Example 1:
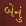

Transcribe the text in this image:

બેનું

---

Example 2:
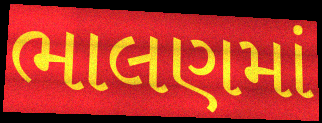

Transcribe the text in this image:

ભાલણમાં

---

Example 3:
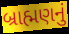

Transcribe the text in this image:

બ્રાહ્મણનું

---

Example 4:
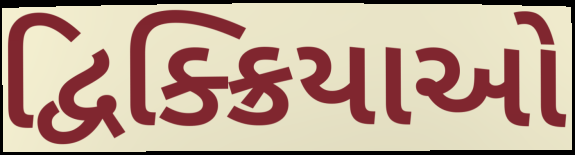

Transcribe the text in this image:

દ્વિક્ક્રિયાઓ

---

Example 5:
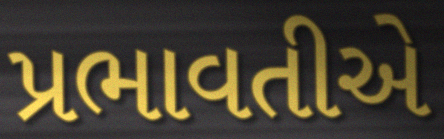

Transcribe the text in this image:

પ્રભાવતીએ